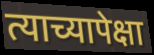
त्याच्यापेक्षा